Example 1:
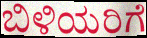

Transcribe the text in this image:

ಬಿಳಿಯರಿಗೆ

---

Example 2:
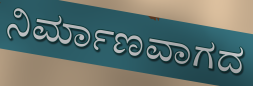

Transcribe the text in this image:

ನಿರ್ಮಾಣವಾಗದ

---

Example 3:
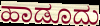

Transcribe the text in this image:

ಹಾಡೂದು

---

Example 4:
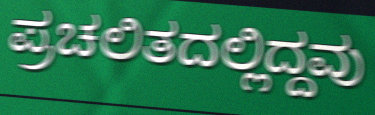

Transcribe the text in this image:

ಪ್ರಚಲಿತದಲ್ಲಿದ್ದವು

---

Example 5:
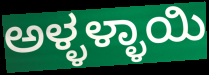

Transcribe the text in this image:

ಅಳ್ಳಳ್ಳಾಯಿ